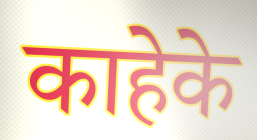
काहेके